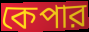
কেপার